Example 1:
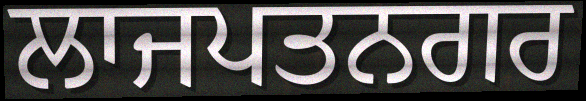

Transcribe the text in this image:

ਲਾਜਪਤਨਗਰ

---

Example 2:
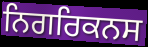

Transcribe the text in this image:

ਨਿਗਰਿਕਨਸ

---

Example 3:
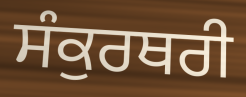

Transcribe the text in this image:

ਸੰਕੁਰਥਰੀ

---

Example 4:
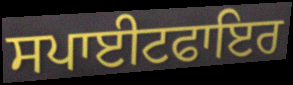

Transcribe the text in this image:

ਸਪਾਈਟਫਾਇਰ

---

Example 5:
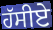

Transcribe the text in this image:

ਹੱਸੀਏ